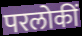
परलोकीं